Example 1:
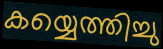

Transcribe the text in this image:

കയ്യെത്തിച്ചു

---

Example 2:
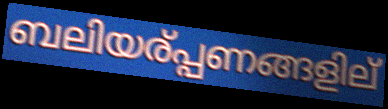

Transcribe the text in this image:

ബലിയര്പ്പണങ്ങളില്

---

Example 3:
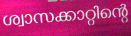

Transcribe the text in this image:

ശ്വാസക്കാറ്റിന്റെ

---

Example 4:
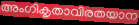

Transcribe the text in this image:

അംഗികൃതാവിരതയാന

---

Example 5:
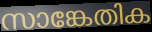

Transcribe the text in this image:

സാങ്കേതിക